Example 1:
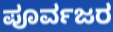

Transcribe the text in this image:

ಪೂರ್ವಜರ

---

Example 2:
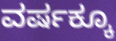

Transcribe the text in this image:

ವರ್ಷಕ್ಕೂ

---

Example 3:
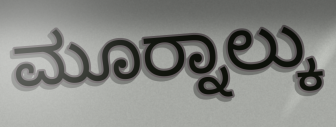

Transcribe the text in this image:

ಮೂರ‍್ನಾಲ್ಕು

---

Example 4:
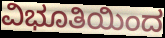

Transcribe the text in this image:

ವಿಭೂತಿಯಿಂದ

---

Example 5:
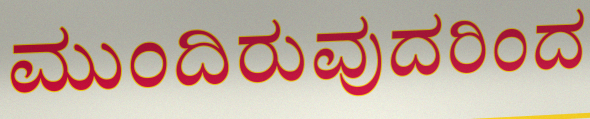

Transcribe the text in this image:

ಮುಂದಿರುವುದರಿಂದ